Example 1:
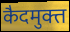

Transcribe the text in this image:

कैदमुक्त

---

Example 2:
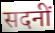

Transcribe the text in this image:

सदनीं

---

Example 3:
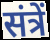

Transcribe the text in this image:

संत्रें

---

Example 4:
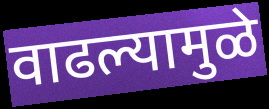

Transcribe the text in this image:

वाढल्यामुळे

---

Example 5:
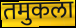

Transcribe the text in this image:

तमुकला